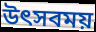
উৎসবময়